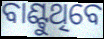
ବାଣ୍ଟୁଥିବେ